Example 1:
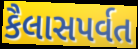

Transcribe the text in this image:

કૈલાસપર્વત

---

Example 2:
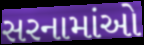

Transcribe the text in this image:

સરનામાંઓ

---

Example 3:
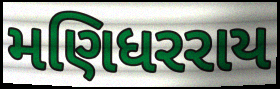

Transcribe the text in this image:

મણિધરરાય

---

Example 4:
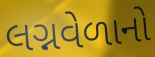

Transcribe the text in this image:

લગ્નવેળાનો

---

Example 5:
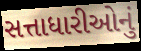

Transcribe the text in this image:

સત્તાધારીઓનું